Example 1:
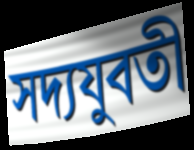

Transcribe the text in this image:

সদ্যযুবতী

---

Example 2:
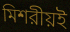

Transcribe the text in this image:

মিশরীয়ই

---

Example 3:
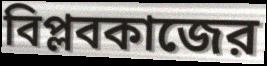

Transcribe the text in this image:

বিপ্লবকাজের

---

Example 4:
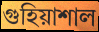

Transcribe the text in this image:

গুহিয়াশাল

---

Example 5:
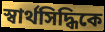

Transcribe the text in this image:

স্বার্থসিদ্ধিকে